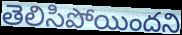
తెలిసిపోయిందని